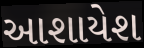
આશાયેશ